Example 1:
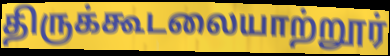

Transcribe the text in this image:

திருக்கூடலையாற்றூர்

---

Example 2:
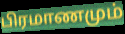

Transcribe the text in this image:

பிரமாணமும்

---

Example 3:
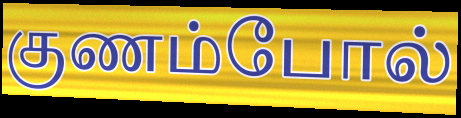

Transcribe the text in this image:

குணம்போல்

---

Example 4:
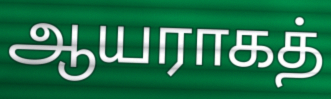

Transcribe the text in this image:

ஆயராகத்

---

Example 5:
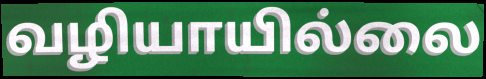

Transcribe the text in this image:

வழியாயில்லை